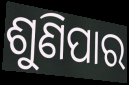
ଶୁଣିପାର